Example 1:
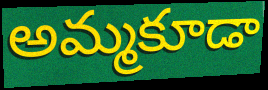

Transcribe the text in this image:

అమ్మకూడా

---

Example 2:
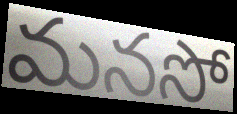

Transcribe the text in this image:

మనసో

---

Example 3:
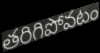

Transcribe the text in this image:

తరిగిపోవటం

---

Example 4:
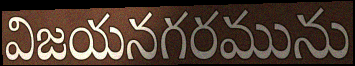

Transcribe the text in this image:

విజయనగరమును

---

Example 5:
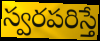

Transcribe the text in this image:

స్వరపరిస్తే